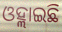
ଓହ୍ଲାଇଛି